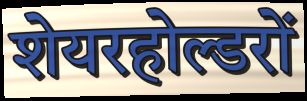
शेयरहोल्डरों